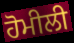
ਹੋਮੀਲੀ